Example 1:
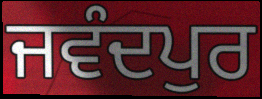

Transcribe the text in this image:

ਜਵੰਦਪੁਰ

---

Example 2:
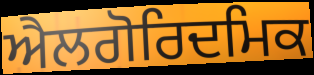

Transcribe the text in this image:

ਐਲਗੋਰਿਦਮਿਕ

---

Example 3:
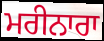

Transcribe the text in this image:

ਮਰੀਨਾਰਾ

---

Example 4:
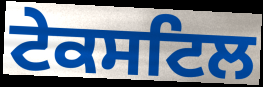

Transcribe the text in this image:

ਟੇਕਸਟਿਲ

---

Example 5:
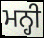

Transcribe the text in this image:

ਮਨ੍ਹੀ